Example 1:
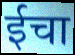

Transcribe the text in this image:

ईचा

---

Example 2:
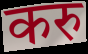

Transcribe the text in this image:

करु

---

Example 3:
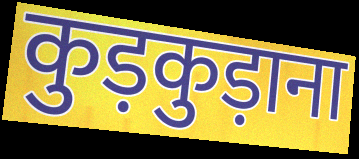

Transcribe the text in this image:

कुड़कुड़ाना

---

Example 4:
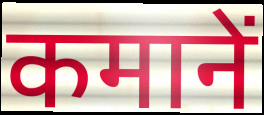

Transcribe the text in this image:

कमानें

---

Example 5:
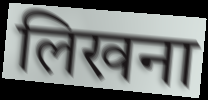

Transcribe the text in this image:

लिखना